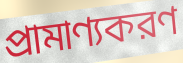
প্রামাণ্যকরণ